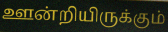
ஊன்றியிருக்கும்